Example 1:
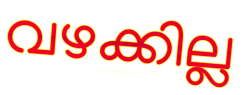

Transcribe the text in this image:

വഴക്കില്ല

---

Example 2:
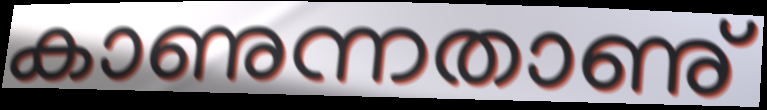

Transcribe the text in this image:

കാണുന്നതാണു്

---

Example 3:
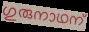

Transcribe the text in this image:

ഗുരുനാഥന്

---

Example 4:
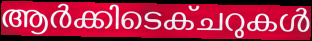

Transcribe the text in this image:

ആർക്കിടെക്ചറുകൾ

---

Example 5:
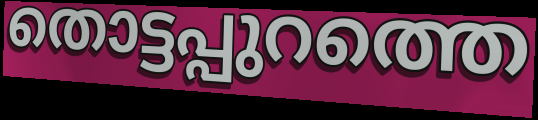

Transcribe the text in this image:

തൊട്ടപ്പുറത്തെ